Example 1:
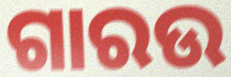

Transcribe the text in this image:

ଗାରଉ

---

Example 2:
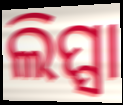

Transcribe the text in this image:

ଲିପ୍ସା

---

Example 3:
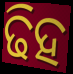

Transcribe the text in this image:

ଢିହ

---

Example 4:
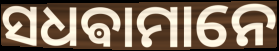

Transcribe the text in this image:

ସଧଵାମାନେ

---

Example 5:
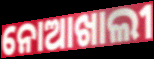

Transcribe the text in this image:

ନୋଆଖାଲୀ